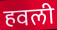
हवली